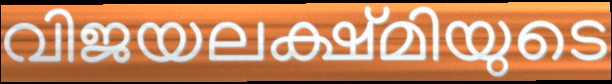
വിജയലക്ഷ്മിയുടെ